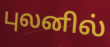
புலனில்